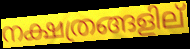
നക്ഷത്രങ്ങളില്